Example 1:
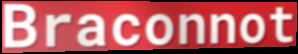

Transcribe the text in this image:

Braconnot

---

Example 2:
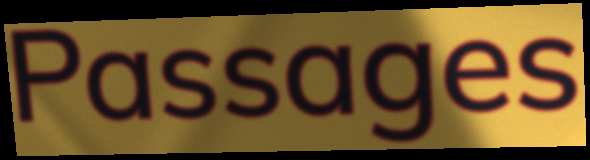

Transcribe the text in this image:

Passages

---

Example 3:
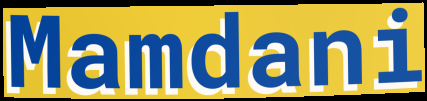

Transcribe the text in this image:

Mamdani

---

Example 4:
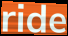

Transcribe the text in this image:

ride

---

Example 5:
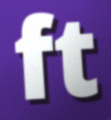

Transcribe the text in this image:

ft